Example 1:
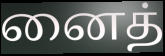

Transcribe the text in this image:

னைத்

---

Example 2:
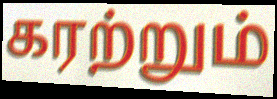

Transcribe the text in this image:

கரற்றும்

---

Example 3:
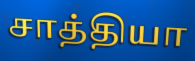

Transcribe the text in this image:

சாத்தியா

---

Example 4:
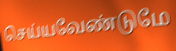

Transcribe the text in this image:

செய்யவேண்டுமே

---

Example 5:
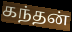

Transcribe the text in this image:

கந்தன்